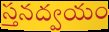
స్తనద్వయం